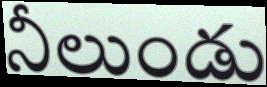
నీలుండు